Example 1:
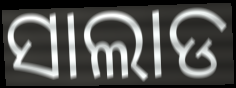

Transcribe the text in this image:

ସାଲାଡ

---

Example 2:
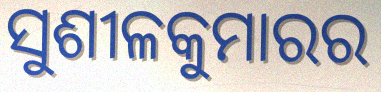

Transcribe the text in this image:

ସୁଶୀଳକୁମାରର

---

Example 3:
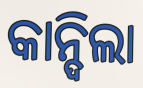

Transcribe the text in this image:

କାନ୍ଦିଲା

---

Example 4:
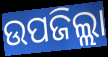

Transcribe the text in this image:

ଉପଜିଲ୍ଲା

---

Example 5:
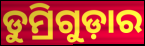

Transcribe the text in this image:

ଡୁମ୍ରିଗୁଡ଼ାର